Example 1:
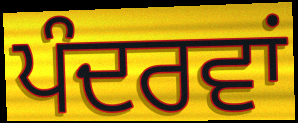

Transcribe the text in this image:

ਪੰਦਰਵਾਂ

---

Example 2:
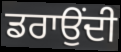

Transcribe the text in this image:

ਡਰਾਉਂਦੀ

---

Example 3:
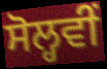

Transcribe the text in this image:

ਸੋਲ੍ਹਵੀਂ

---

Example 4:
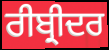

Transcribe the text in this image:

ਰੀਬ੍ਰੀਦਰ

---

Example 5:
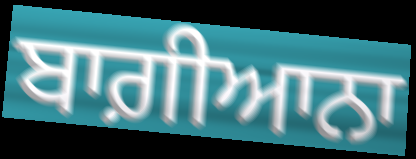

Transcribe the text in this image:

ਬਾਗ਼ੀਆਨਾ